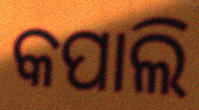
କପାଲି